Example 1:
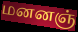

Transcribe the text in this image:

மனனஞ்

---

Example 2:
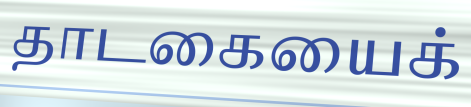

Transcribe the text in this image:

தாடகையைக்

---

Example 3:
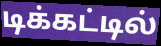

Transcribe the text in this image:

டிக்கட்டில்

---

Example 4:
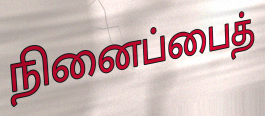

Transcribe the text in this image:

நினைப்பைத்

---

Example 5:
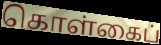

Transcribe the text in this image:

கொள்கைப்